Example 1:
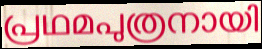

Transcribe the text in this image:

പ്രഥമപുത്രനായി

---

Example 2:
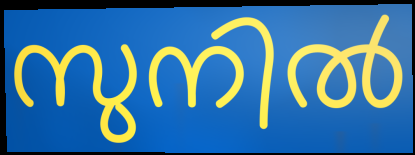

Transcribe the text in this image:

സുനിൽ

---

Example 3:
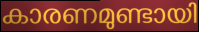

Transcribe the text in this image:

കാരണമുണ്ടായി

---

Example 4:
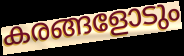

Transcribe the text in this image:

കരങ്ങളോടും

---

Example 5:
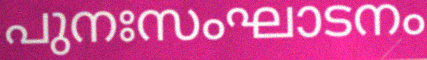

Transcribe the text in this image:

പുനഃസംഘാടനം